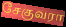
சேகுவரா